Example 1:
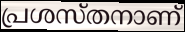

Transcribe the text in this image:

പ്രശസ്തനാണ്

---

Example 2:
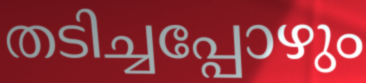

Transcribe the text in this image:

തടിച്ചപ്പോഴും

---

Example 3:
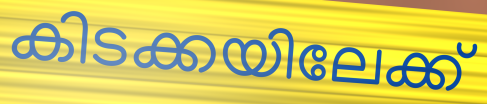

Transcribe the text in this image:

കിടക്കയിലേക്ക്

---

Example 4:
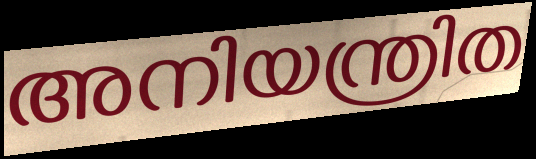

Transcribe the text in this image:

അനിയന്ത്രിത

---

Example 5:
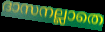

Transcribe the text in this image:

ദാസനല്ലാതെ